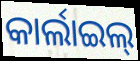
କାର୍ଲାଇଲ୍